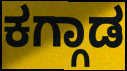
ಕಗ್ಗಾಡ